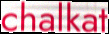
chalkat